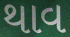
થાવ